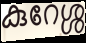
കുറേശ്ശ